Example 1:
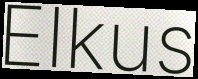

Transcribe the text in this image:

Elkus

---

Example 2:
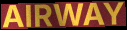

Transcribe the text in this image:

AIRWAY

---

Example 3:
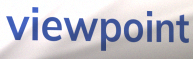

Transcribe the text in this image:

viewpoint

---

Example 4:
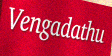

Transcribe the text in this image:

Vengadathu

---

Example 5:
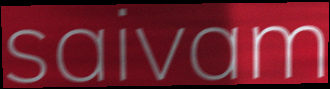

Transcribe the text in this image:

saivam